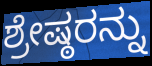
ಶ್ರೇಷ್ಠರನ್ನು